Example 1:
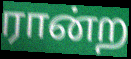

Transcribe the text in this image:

ரான்ற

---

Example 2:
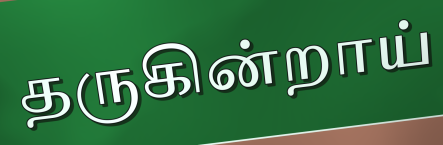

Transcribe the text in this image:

தருகின்றாய்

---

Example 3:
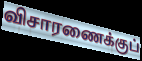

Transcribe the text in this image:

விசாரணைக்குப்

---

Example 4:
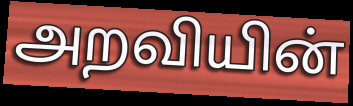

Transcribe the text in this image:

அறவியின்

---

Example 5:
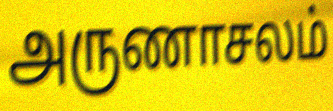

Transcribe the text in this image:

அருணாசலம்